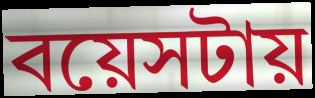
বয়েসটায়